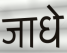
जाधे